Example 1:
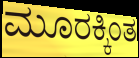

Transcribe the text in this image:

ಮೂರಕ್ಕಿಂತ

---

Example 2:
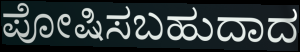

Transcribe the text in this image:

ಪೋಷಿಸಬಹುದಾದ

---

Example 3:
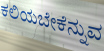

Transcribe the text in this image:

ಕಲಿಯಬೇಕೆನ್ನುವ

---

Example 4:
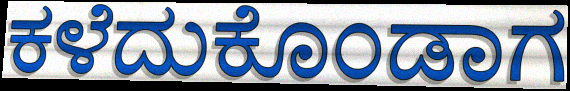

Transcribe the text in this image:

ಕಳೆದುಕೊಂಡಾಗ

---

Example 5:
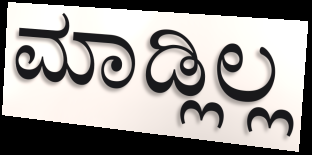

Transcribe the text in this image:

ಮಾಡ್ಲಿಲ್ಲ